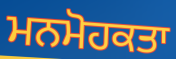
ਮਨਮੋਹਕਤਾ